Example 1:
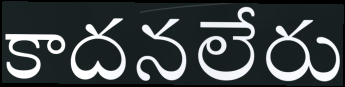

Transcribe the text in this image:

కాదనలేరు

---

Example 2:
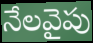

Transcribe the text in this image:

నేలవైపు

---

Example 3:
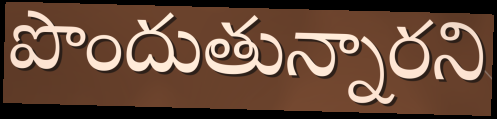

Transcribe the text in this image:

పొందుతున్నారని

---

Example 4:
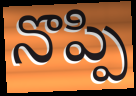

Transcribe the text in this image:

నొప్పి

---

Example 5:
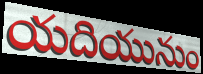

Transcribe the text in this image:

యదియునుం